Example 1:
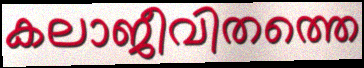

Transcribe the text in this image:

കലാജീവിതത്തെ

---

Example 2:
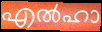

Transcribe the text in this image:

എൽഹാ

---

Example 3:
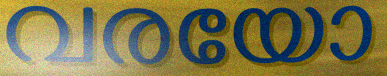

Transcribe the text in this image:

വരയോ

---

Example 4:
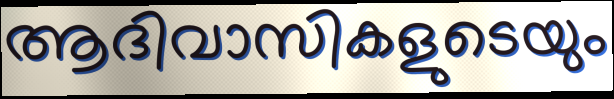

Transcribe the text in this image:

ആദിവാസികളുടെയും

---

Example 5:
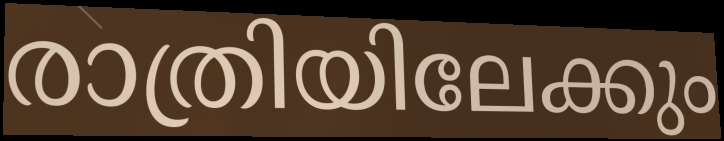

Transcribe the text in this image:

രാത്രിയിലേക്കും